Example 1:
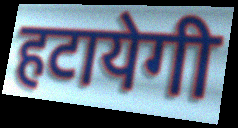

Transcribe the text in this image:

हटायेगी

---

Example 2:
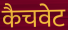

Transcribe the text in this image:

कैचवेट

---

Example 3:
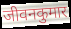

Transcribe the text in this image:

जीवनकुमार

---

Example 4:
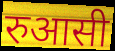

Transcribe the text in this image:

रुआसी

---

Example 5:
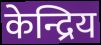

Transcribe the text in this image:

केन्द्रिय